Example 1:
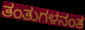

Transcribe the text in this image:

ತಂತುಗಳನಂತ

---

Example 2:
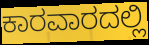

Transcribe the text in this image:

ಕಾರವಾರದಲ್ಲಿ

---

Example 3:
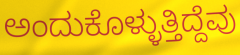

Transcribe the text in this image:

ಅಂದುಕೊಳ್ಳುತ್ತಿದ್ದೆವು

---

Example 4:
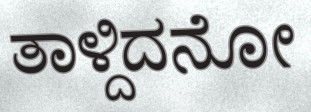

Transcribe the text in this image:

ತಾಳ್ದಿದನೋ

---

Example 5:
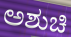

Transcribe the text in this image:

ಅಶುಚಿ